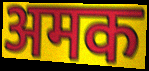
अमक